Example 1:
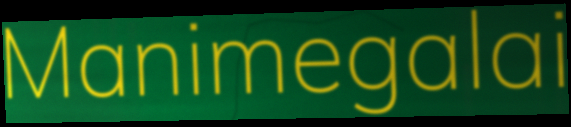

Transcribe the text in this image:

Manimegalai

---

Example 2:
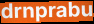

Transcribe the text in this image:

drnprabu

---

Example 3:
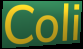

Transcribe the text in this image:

Coli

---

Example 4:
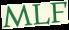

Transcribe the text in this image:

MLF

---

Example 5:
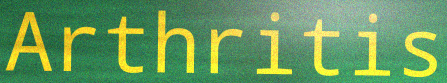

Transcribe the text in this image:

Arthritis